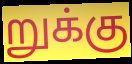
றுக்கு